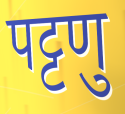
पट्टणु